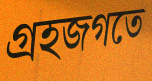
গ্রহজগতে